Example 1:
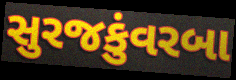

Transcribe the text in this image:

સુરજકુંવરબા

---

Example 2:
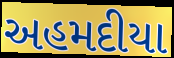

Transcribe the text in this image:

અહમદીયા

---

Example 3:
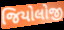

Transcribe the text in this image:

જિયોલોજી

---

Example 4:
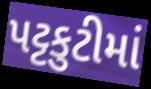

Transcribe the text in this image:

પટ્ટકુટીમાં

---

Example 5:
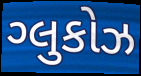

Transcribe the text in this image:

ગ્લુકોઝ